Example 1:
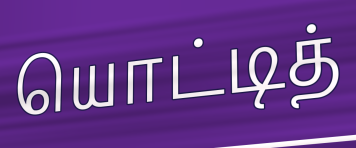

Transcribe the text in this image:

யொட்டித்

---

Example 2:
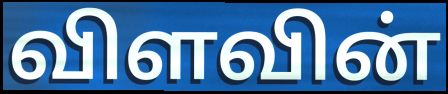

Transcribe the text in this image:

விளவின்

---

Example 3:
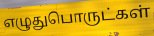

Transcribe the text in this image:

எழுதுபொருட்கள்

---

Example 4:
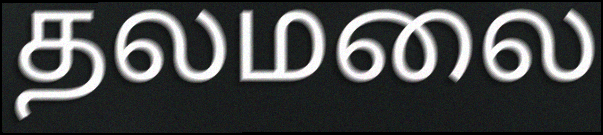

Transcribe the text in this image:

தலமலை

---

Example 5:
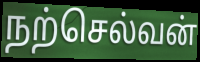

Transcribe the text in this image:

நற்செல்வன்